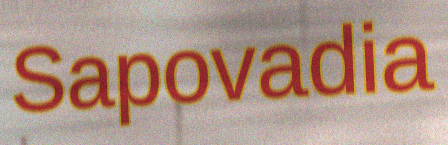
Sapovadia